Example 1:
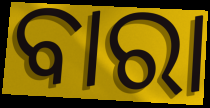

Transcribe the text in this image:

ବାରା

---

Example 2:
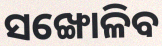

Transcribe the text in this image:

ସଙ୍ଖୋଳିବ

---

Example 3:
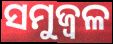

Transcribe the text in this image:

ସମୁଜ୍ୱଳ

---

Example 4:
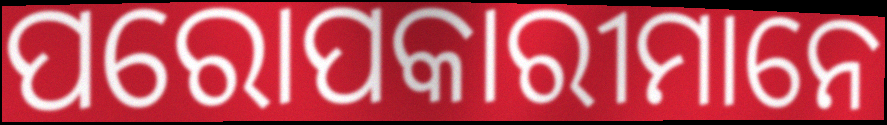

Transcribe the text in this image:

ପରୋପକାରୀମାନେ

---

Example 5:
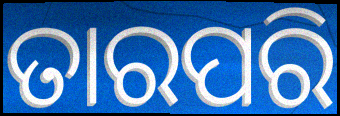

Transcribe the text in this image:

ତାରପରି